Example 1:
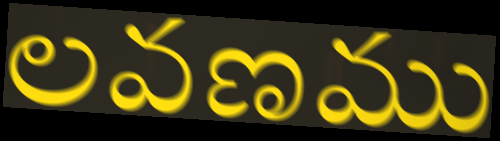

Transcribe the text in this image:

లవణము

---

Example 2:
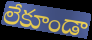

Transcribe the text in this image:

లేకూండా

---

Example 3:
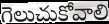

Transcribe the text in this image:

గెలుచుకోవాలి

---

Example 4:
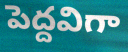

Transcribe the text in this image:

పెద్దవిగా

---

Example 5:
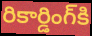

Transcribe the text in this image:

రికార్డింగ్‌కి